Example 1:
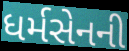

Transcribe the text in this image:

ધર્મસેનની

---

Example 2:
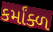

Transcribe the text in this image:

કર્માંક્ળ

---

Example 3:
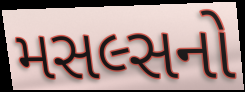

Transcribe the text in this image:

મસલ્સનો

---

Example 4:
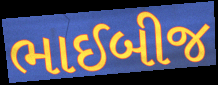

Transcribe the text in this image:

ભાઈબીજ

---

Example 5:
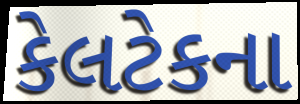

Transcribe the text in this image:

કેલટેકના